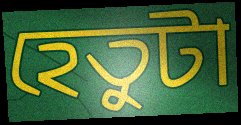
হেতুটা